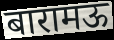
बारामऊ